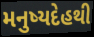
મનુષ્યદેહથી